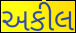
અકીલ